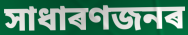
সাধাৰণজনৰ